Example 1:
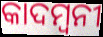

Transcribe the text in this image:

କାଦମ୍ୱନୀ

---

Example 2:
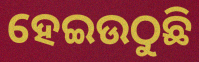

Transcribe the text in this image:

ହେଇଉଠୁଛି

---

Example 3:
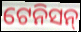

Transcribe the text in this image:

ଟେନିସନ୍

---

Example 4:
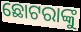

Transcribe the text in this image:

ଛୋଟରାଙ୍କୁ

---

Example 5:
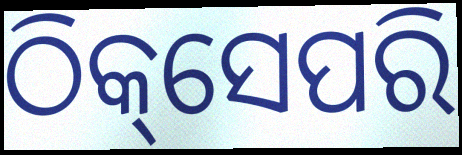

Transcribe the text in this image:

ଠିକ୍‌ସେପରି